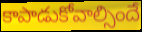
కాపాడుకోవాల్సిందే